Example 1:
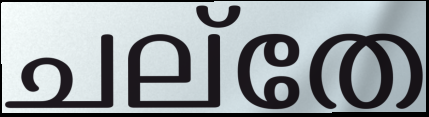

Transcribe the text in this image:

ചല്തേ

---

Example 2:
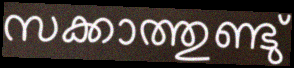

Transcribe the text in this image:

സക്കാത്തുണ്ടു്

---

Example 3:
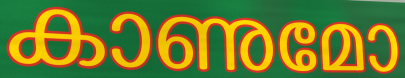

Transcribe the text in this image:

കാണുമോ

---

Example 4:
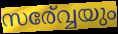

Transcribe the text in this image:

സര്വ്വേയും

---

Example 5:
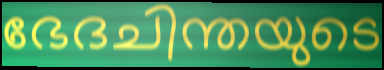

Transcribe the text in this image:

ഭേദചിന്തയുടെ